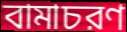
বামাচরণ